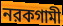
নরকগামী